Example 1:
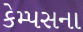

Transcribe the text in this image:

કેમ્પસના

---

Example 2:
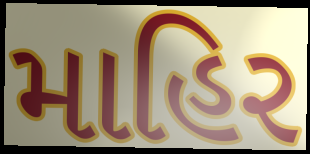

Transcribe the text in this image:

માહિર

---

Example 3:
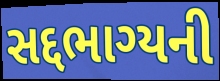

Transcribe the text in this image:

સદ્દભાગ્યની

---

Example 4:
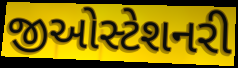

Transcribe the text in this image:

જીઓસ્ટેશનરી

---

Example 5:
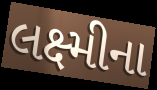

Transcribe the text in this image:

લક્ષ્મીના